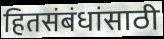
हितसंबंधांसाठी